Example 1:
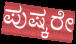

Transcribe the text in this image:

ಪುಷ್ಕರೇ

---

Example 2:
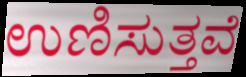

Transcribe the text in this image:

ಉಣಿಸುತ್ತವೆ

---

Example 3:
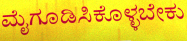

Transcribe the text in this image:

ಮೈಗೂಡಿಸಿಕೊಳ್ಳಬೇಕು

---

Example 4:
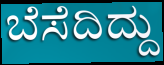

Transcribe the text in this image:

ಬೆಸೆದಿದ್ದು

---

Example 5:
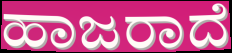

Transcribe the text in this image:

ಹಾಜರಾದೆ